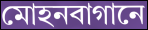
মোহনবাগানে